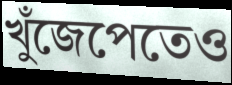
খুঁজেপেতেও